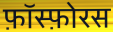
फ़ॉस्फ़ोरस